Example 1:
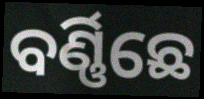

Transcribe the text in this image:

ବର୍ଣ୍ଣିଛେ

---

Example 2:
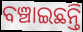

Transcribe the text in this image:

ବଞ୍ଚାଇଛନ୍ତି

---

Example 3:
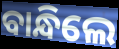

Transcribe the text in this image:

ବାନ୍ଧିଲେ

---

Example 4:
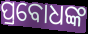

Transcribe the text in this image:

ପ୍ରବୋଧଙ୍କ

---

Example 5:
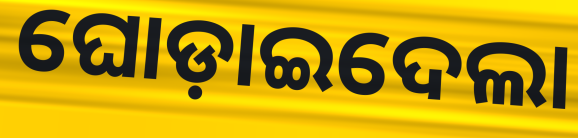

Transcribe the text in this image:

ଘୋଡ଼ାଇଦେଲା